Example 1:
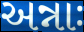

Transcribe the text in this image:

અન્નાઃ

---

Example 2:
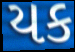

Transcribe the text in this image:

યક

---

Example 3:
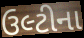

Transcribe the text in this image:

ઉલ્ટીના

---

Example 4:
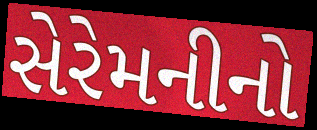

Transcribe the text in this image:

સેરેમનીનો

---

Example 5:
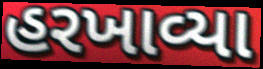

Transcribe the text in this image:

હરખાવ્યા